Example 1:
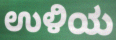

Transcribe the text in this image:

ಉಳಿಯ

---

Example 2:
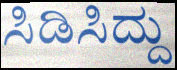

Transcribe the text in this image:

ಸಿಡಿಸಿದ್ದು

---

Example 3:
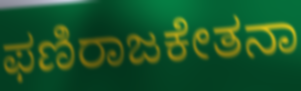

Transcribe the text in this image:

ಫಣಿರಾಜಕೇತನಾ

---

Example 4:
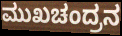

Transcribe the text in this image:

ಮುಖಚಂದ್ರನ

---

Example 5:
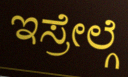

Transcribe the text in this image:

ಇಸ್ರೇಲ್ಗೆ